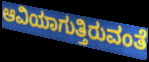
ಆವಿಯಾಗುತ್ತಿರುವಂತೆ